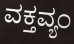
ವಕ್ತವ್ಯಂ